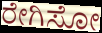
ರೇಗಿಸೋ